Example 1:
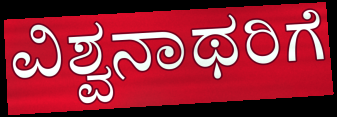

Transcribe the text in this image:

ವಿಶ್ವನಾಥರಿಗೆ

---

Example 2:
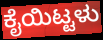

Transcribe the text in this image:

ಕೈಯಿಟ್ಟಳು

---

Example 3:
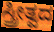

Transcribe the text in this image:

ಸ್ತ್ರೀತ್ವದ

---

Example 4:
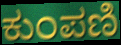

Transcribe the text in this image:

ಕುಂಪಣಿ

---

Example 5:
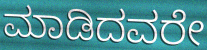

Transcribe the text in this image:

ಮಾಡಿದವರೇ